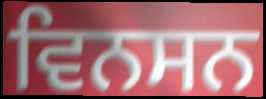
ਵਿਨਸਨ